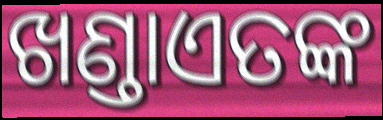
ଖଣ୍ଡାଏତଙ୍କ